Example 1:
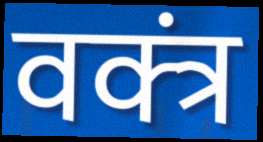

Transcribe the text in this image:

वक्त्रं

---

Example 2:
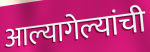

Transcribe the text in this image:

आल्यागेल्यांची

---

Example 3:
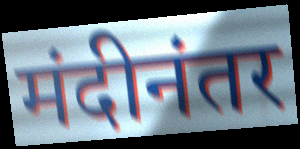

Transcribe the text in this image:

मंदीनंतर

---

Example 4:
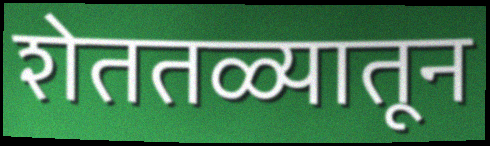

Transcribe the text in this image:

शेततळ्यातून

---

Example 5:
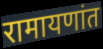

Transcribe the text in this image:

रामायणांत